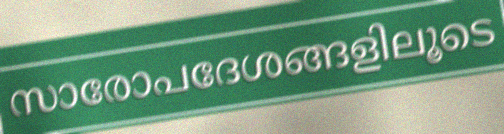
സാരോപദേശങ്ങളിലൂടെ